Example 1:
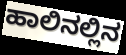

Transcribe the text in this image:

ಹಾಲಿನಲ್ಲಿನ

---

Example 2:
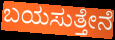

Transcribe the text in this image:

ಬಯಸುತ್ತೇನೆ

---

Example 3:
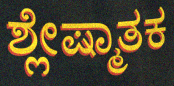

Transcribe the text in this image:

ಶ್ಲೇಷ್ಮಾತಕ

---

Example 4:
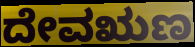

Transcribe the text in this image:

ದೇವಋಣ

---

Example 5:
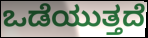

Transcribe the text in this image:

ಒಡೆಯುತ್ತದೆ